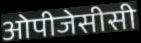
ओपीजेसीसी